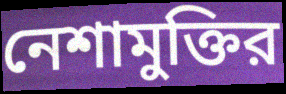
নেশামুক্তির